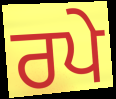
ਰਪੇ